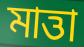
মাত্তা